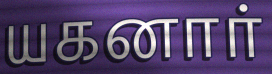
யகனார்